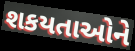
શકયતાઓને